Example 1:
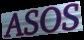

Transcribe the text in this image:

ASOS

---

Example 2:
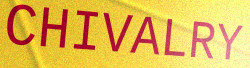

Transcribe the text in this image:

CHIVALRY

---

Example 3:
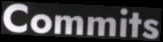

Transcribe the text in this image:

Commits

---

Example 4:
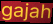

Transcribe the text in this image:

gajah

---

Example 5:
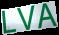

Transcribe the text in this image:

LVA